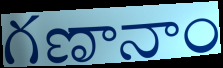
గణానాం